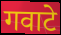
गवाटे